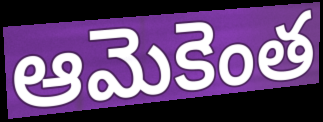
ఆమెకెంత